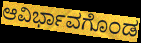
ಆವಿರ್ಭಾವಗೊಂಡ